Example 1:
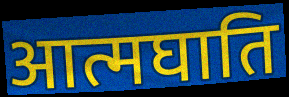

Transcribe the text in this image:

आत्मघाति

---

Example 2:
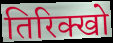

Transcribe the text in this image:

तिरिक्खो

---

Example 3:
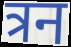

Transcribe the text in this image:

त्रन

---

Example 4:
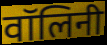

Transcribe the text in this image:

वॉलिनी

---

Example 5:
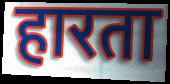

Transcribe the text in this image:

हारता